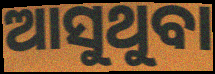
ଆସୁଥୁବା